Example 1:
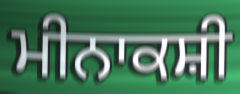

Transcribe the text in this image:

ਮੀਨਾਕਸ਼ੀ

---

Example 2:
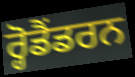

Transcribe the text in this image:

ਰ੍ਹੋਡੈਂਡਰਨ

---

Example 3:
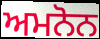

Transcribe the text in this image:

ਅਮਨੋਨ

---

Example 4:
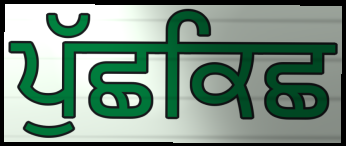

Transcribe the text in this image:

ਪੁੱਛਕਿਛ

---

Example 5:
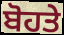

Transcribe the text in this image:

ਬੋਹਤੇ